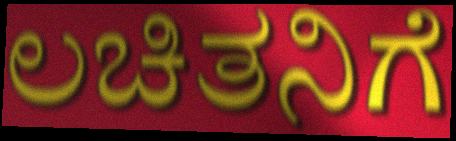
ಲಚಿತನಿಗೆ